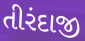
તીરંદાજી